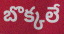
బొక్కలే